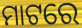
ମାଟରେ